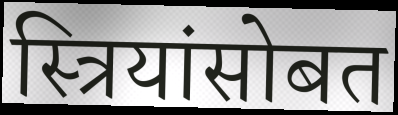
स्त्रियांसोबत